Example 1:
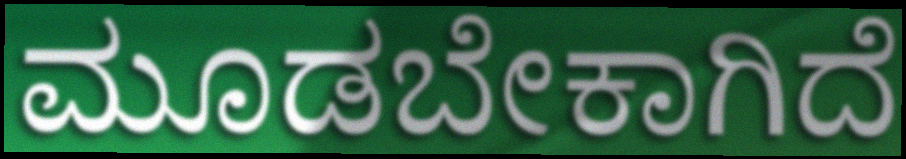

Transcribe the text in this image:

ಮೂಡಬೇಕಾಗಿದೆ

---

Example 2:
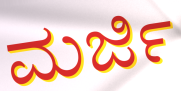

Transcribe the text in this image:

ಮರ್ಜಿ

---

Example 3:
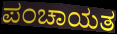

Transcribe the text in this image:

ಪಂಚಾಯತ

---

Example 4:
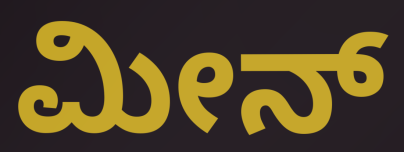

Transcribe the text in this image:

ಮೀನ್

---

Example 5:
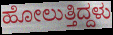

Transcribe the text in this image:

ಹೋಲುತ್ತಿದ್ದಳು